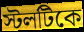
স্টলটিকে